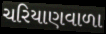
ચરિયાણવાળા